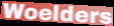
Woelders